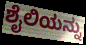
ಶೈಲಿಯನ್ನು